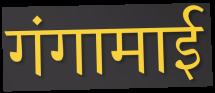
गंगामाई